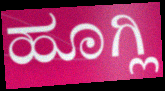
ಹೂಗ್ಲಿ